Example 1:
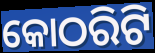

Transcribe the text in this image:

କୋଠରିଟି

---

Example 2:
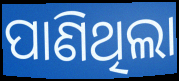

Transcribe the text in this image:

ପାଣିଥିଲା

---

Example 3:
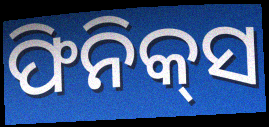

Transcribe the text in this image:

ଫିନିକ୍‍ସ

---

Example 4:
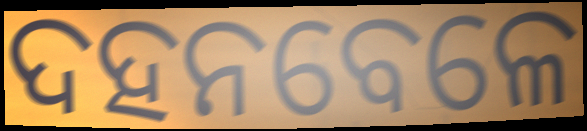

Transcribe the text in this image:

ଦହନବେଳେ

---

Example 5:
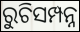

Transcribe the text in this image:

ରୁଚିସମ୍ପନ୍ନ